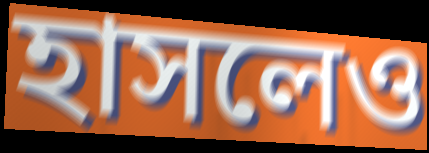
হাসলেও